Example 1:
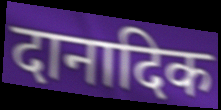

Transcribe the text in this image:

दानादिक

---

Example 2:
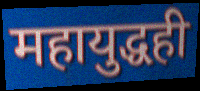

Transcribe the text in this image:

महायुद्धही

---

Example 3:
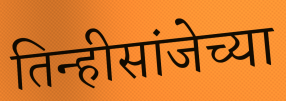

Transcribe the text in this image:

तिन्हीसांजेच्या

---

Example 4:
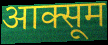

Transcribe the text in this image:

आक्सूम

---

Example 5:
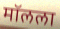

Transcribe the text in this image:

मॉलला